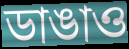
ডাঙাও